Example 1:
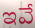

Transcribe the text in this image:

ఇవే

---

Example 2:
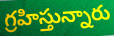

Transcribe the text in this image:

గ్రహిస్తున్నారు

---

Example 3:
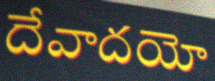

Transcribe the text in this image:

దేవాదయో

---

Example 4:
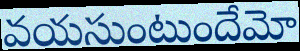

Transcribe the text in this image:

వయసుంటుందేమో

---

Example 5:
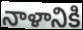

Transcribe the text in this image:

నాళానికి